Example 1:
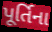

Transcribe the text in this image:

પૂર્તિના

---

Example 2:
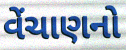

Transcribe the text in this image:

વેંચાણનો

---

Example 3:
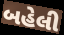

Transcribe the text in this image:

બહેલી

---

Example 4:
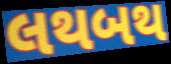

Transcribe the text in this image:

લથબથ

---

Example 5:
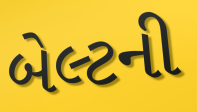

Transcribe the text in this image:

બેલ્ટની